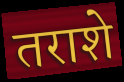
तराशे